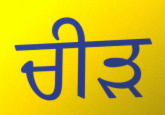
ਚੀੜ